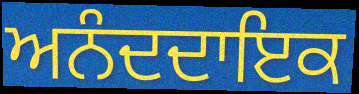
ਅਨੰਦਦਾਇਕ